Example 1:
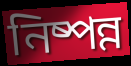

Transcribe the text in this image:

নিষ্পন্ন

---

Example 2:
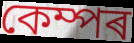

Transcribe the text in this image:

কেম্পৰ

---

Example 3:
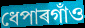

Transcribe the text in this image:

ধেপাৰগাঁও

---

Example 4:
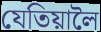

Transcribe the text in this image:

যেতিয়ালৈ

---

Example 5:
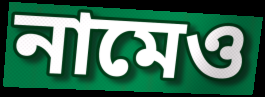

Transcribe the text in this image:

নামেও